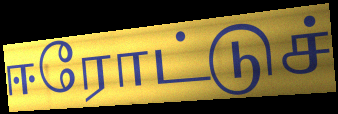
ஈரோட்டுச்